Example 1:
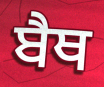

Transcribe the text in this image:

ਬੈਥ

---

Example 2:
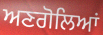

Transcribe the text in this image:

ਅਣਗੋਲਿਆਂ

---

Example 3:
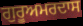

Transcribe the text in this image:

ਗੁਰੂਅਮਰਦਾਸ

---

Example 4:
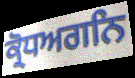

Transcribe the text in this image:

ਕ੍ਰੋਧਅਗਨਿ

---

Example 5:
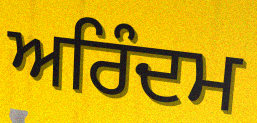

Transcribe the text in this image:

ਅਰਿੰਦਮ